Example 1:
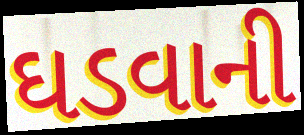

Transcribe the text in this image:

ઘડવાની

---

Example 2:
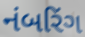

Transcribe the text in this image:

નંબરિંગ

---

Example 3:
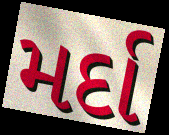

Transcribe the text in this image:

મર્દા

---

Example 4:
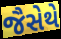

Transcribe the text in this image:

જૈસેથે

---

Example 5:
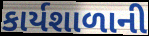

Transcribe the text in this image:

કાર્યશાળાની